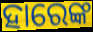
ହାରେଙ୍କ